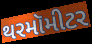
થરમૉમીટર